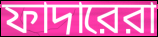
ফাদারেরা